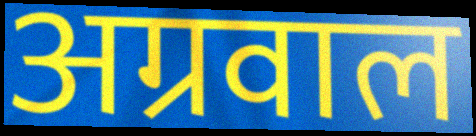
अग्रवाल